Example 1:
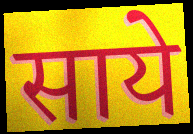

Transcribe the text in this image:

साये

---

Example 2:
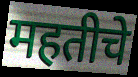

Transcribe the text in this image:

महतीचे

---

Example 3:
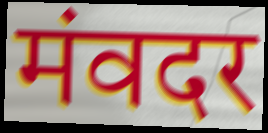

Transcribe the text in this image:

मंवदर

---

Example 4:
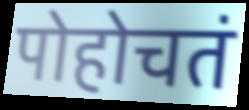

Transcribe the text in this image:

पोहोचतं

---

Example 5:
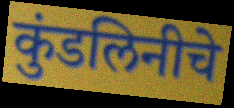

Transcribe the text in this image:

कुंडलिनीचे